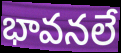
భావనలే